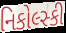
નિકોલ્સ્કી